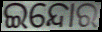
ଇନ୍ଦୋର